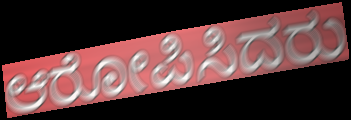
ಆರೋಪಿಸಿದರು